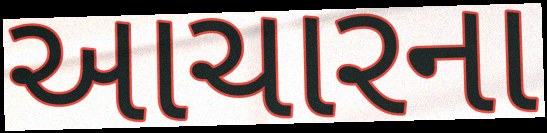
આચારના